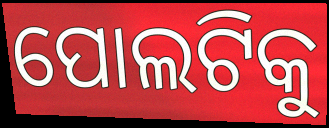
ପୋଲଟିକୁ